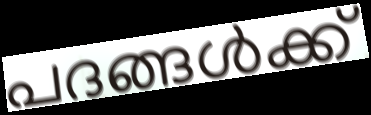
പദങ്ങൾക്ക്